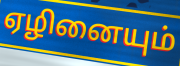
ஏழினையும்